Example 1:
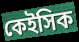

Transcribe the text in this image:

কেইসিক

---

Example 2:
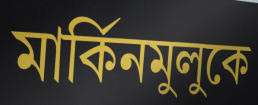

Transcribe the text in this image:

মার্কিনমুলুকে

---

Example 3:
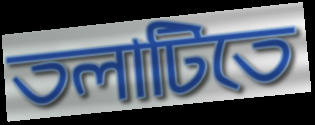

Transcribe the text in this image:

তলাটিতে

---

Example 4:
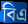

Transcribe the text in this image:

বিএ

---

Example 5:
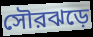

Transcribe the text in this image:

সৌরঝড়ে